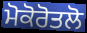
ਮੋਕੋਰੋਤਲੋ